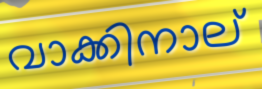
വാക്കിനാല്